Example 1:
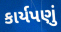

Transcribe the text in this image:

કાર્યપણું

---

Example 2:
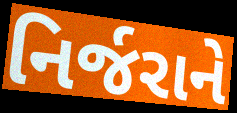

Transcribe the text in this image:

નિર્જરાને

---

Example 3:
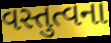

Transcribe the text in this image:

વસ્તુત્વના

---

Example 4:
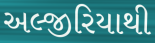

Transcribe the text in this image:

અલ્જીરિયાથી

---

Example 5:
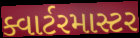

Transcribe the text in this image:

ક્વાર્ટરમાસ્ટર